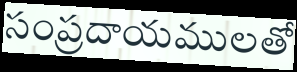
సంప్రదాయములతో